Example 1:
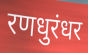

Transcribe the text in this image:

रणधुरंधर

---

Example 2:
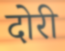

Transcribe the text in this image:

दोरी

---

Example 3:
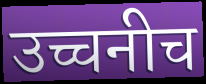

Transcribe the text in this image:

उच्चनीच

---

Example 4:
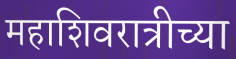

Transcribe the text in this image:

महाशिवरात्रीच्या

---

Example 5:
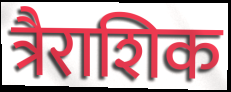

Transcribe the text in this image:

त्रैराशिक